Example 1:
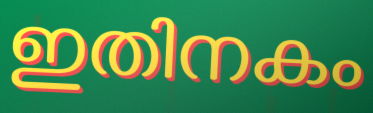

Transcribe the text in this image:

ഇതിനകം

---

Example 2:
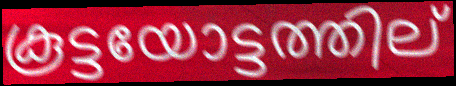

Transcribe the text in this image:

കൂട്ടയോട്ടത്തില്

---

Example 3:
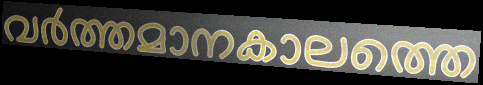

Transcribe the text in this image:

വർത്തമാനകാലത്തെ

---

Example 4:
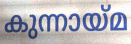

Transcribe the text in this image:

കുന്നായ്മ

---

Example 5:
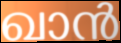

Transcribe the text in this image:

ഖാൻ